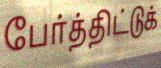
பேர்த்திட்டுக்